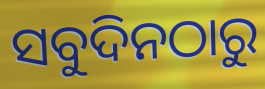
ସବୁଦିନଠାରୁ